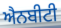
ਐਨਬੀਟੀ